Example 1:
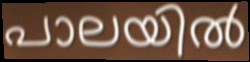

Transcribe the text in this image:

പാലയിൽ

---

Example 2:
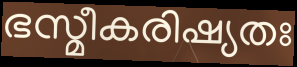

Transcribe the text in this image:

ഭസ്മീകരിഷ്യതഃ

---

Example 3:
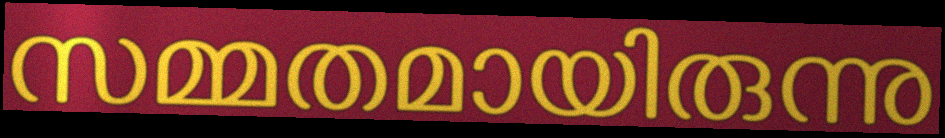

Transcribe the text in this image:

സമ്മതമായിരുന്നു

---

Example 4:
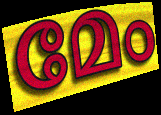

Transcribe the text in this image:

മേം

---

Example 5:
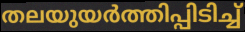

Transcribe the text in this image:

തലയുയർത്തിപ്പിടിച്ച്